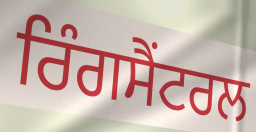
ਰਿੰਗਸੈਂਟਰਲ